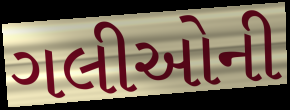
ગલીઓની